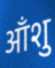
आँशु